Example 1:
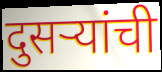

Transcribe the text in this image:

दुसऱ्यांची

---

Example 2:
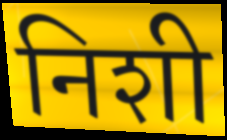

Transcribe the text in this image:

निशी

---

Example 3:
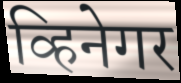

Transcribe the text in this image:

व्हिनेगर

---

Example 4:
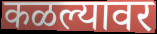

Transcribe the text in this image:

कळल्यावर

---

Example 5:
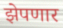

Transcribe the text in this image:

झेपणार